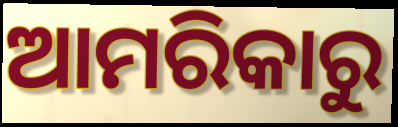
ଆମରିକାରୁ